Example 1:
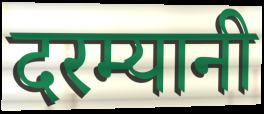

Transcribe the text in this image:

दरम्यानी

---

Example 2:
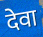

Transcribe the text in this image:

देवा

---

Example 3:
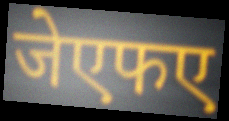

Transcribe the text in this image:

जेएफए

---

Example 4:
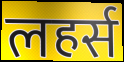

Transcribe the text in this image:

लहर्स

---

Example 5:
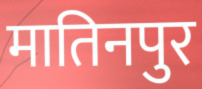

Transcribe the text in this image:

मातिनपुर